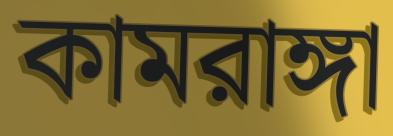
কামরাঙ্গা